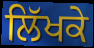
ਲਿੱਖਕੇ